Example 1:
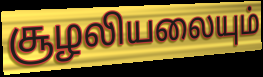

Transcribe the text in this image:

சூழலியலையும்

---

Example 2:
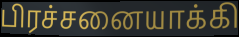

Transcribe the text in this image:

பிரச்சனையாக்கி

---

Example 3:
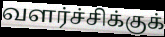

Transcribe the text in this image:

வளர்ச்சிக்குக்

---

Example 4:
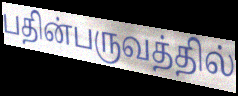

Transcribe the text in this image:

பதின்பருவத்தில்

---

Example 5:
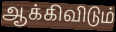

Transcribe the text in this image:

ஆக்கிவிடும்